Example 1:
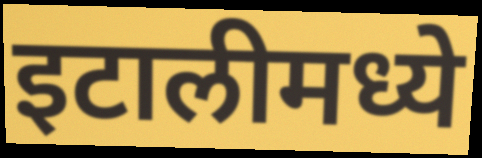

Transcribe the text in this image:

इटालीमध्ये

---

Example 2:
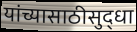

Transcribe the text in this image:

यांच्यासाठीसुद्धा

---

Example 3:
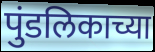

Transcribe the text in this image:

पुंडलिकाच्या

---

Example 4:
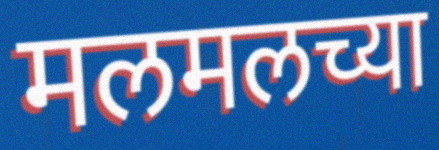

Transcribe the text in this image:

मलमलच्या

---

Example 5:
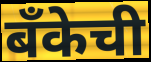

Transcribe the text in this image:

बँकेची